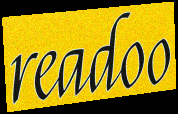
readoo